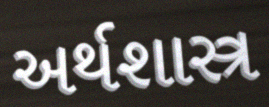
અર્થશાસ્ત્ર